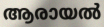
ആരായൽ